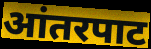
आंतरपाट